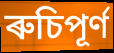
ৰুচিপূৰ্ণ